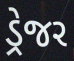
ડ્રેજર